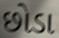
છોડા